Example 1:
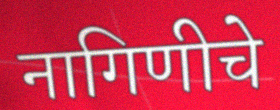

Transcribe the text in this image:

नागिणीचे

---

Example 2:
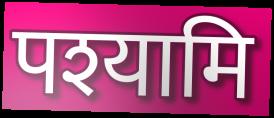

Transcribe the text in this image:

पश्यामि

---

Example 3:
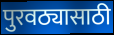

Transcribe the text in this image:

पुरवठ्यासाठी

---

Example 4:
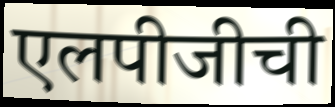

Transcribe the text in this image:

एलपीजीची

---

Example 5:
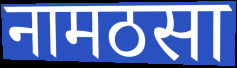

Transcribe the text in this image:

नामठसा